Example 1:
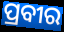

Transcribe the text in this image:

ପ୍ରବୀର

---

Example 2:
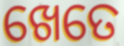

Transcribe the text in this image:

ଖେତେ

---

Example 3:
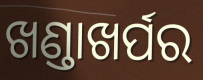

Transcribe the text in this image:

ଖଣ୍ଡାଖର୍ପର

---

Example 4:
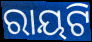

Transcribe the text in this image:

ରାୟଟି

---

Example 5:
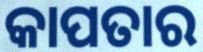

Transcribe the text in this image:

କାପତାର